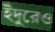
ইঁদুরেও